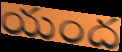
యంద